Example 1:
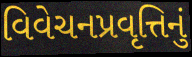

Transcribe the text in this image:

વિવેચનપ્રવૃત્તિનું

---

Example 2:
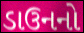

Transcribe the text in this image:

ડાઉનનો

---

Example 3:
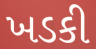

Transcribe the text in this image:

ખડકી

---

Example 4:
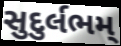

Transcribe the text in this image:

સુદુર્લભમ્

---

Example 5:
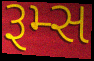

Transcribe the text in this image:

રૂમ્સ